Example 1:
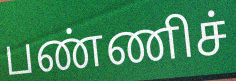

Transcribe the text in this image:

பண்ணிச்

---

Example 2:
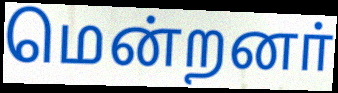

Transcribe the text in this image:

மென்றனர்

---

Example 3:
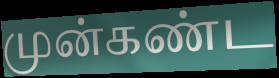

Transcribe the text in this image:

முன்கண்ட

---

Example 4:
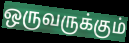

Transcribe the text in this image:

ஒருவருக்கும்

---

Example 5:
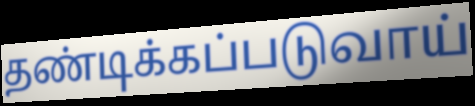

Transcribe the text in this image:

தண்டிக்கப்படுவாய்